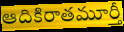
ఆదికిరాతమూర్తీ